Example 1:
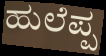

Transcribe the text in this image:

ಹುಲೆಪ್ಪ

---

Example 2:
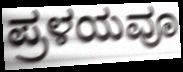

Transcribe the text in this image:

ಪ್ರಳಯವೂ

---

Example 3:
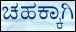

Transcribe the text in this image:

ಚಹಕ್ಕಾಗಿ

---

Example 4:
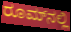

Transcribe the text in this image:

ರೂಮ್‌ನಲ್ಲಿ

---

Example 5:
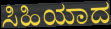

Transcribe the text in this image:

ಸಿಹಿಯಾದ